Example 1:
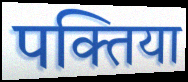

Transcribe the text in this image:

पक्तिया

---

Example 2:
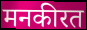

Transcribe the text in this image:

मनकीरत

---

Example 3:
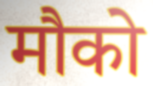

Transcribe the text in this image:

मौको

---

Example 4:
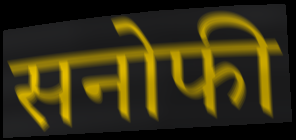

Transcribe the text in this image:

सनोफी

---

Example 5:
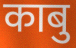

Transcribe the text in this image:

काबु